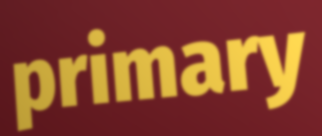
primary